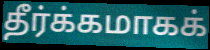
தீர்க்கமாகக்